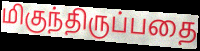
மிகுந்திருப்பதை